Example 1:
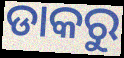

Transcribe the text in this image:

ଡାକରୁ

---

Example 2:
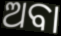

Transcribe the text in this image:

ଅବା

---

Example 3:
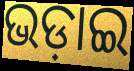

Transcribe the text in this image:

ଭଡ଼ାଇ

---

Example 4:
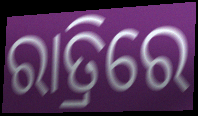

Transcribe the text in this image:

ରାତ୍ରିରେ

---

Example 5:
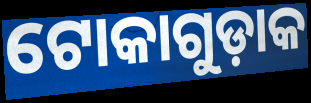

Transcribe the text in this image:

ଟୋକାଗୁଡ଼ାକ